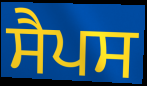
ਸੈਪਸ